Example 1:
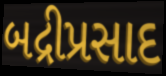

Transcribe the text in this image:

બદ્રીપ્રસાદ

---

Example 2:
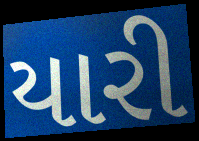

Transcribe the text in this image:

યારી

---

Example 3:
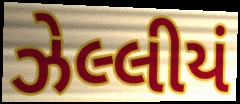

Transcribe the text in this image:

ઝેલ્લીયં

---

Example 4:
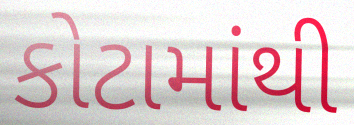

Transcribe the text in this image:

કોટામાંથી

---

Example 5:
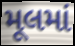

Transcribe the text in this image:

મૂલમાં